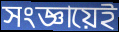
সংজ্ঞায়েই